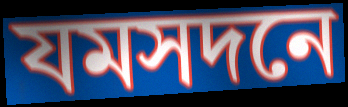
যমসদনে